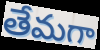
తేమగా